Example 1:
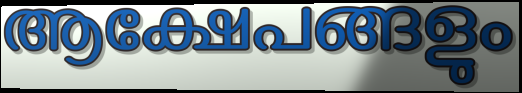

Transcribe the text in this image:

ആക്ഷേപങ്ങളും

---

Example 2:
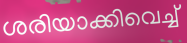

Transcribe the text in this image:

ശരിയാക്കിവെച്ച്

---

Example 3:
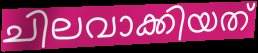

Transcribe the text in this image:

ചിലവാക്കിയത്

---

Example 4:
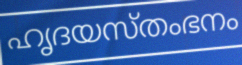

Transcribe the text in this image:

ഹൃദയസ്തംഭനം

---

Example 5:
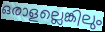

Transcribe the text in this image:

ഒരാളല്ലെങ്കിലും